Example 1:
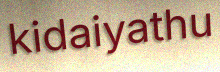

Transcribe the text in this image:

kidaiyathu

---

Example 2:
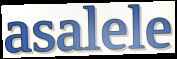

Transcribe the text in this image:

asalele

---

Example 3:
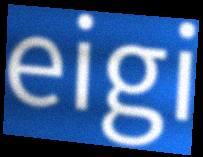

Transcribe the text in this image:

eigi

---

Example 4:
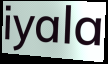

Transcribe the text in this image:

iyala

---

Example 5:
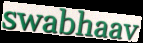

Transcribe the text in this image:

swabhaav